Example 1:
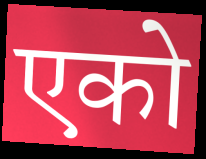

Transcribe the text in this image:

एको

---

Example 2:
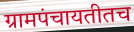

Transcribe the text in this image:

ग्रामपंचायतीतच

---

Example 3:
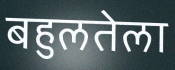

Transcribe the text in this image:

बहुलतेला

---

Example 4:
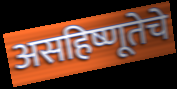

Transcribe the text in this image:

असहिष्णूतेचे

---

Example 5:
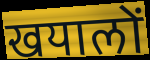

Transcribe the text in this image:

खयालों